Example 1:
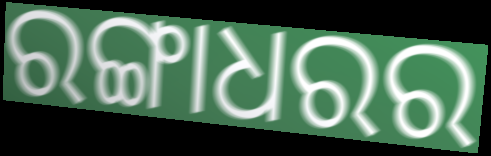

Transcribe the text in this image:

ରଙ୍ଗାଧରର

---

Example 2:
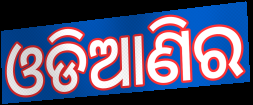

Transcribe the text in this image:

ଓଡିଆଣିର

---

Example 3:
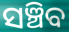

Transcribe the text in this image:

ସଞ୍ଚିବ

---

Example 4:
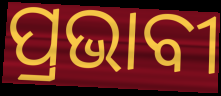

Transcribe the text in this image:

ପ୍ରଭାବୀ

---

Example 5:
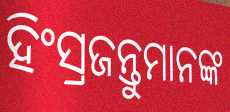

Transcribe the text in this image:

ହିଂସ୍ରଜନ୍ତୁମାନଙ୍କ